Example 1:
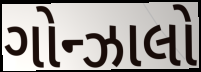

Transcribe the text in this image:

ગોન્ઝાલો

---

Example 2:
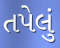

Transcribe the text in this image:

તપેલું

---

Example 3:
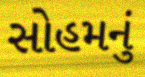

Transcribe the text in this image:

સોહમનું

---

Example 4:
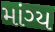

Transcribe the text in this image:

માંગ્ય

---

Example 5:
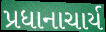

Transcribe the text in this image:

પ્રધાનાચાર્ય